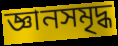
জ্ঞানসমৃদ্ধ